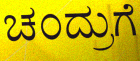
ಚಂದ್ರುಗೆ